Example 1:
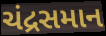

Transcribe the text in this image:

ચંદ્રસમાન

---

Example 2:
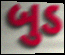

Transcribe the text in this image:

બુડ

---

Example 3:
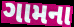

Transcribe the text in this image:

ગામના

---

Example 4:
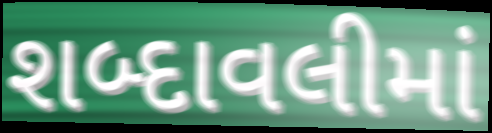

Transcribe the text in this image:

શબ્દાવલીમાં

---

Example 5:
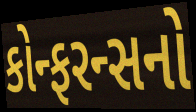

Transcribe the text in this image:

કોન્ફરન્સનો